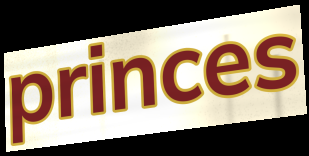
princes